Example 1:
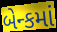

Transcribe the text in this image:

બેન્કમાં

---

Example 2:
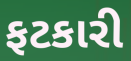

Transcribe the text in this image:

ફટકારી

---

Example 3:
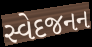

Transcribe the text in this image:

સ્વેદજનન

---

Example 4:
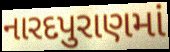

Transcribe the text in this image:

નારદપુરાણમાં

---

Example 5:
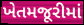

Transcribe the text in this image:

ખેતમજૂરીમાં